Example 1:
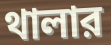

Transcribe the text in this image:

থালার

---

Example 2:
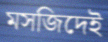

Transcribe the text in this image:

মসজিদেই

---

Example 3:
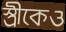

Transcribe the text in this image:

স্ত্রীকেও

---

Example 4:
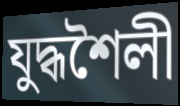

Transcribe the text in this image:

যুদ্ধশৈলী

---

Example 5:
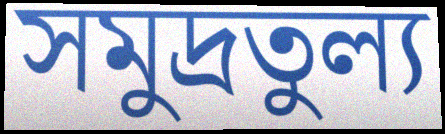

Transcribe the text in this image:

সমুদ্রতুল্য